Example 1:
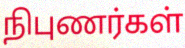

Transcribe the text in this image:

நிபுணர்கள்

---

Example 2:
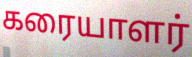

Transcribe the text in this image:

கரையாளர்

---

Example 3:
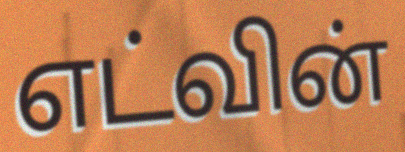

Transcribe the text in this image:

எட்வின்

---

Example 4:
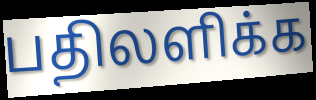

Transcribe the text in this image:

பதிலளிக்க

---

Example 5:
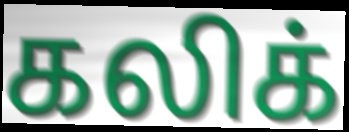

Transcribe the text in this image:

கலிக்